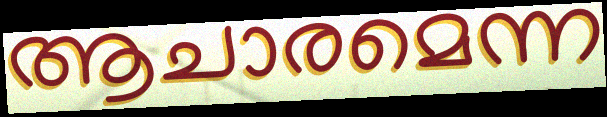
ആചാരമെന്ന